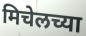
मिचेलच्या